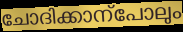
ചോദിക്കാന്പോലും